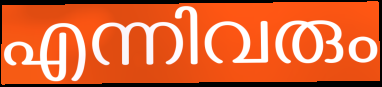
എന്നിവരും